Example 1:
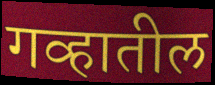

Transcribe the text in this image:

गव्हातील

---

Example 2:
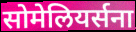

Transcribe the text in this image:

सोमेलियर्सना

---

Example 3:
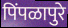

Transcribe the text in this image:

पिंपळापुरे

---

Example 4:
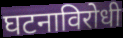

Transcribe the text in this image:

घटनाविरोधी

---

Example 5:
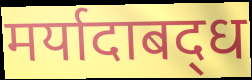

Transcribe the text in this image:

मर्यादाबद्ध